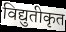
विद्युतीकृत